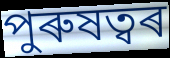
পুৰুষত্বৰ